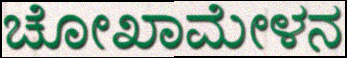
ಚೋಖಾಮೇಳನ